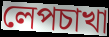
লেপচাখা